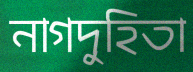
নাগদুহিতা